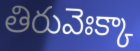
తిరువెఃక్కా